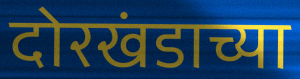
दोरखंडाच्या